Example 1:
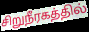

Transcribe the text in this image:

சிறுநீரகத்தில்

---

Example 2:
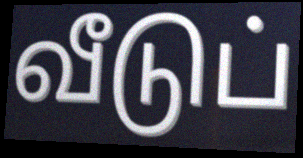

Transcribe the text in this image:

வீடுப்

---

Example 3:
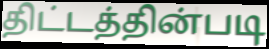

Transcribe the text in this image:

திட்டத்தின்படி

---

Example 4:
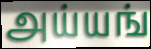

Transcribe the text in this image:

அய்யங்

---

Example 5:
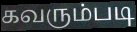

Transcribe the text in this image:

கவரும்படி